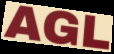
AGL